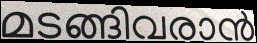
മടങ്ങിവരാൻ